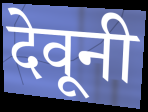
देवूनी